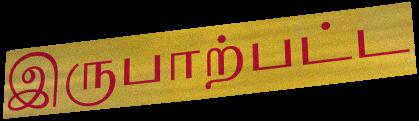
இருபாற்பட்ட